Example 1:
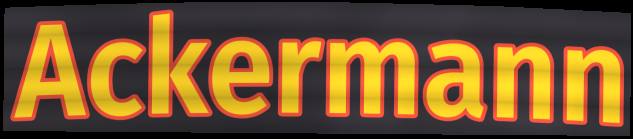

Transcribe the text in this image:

Ackermann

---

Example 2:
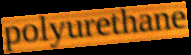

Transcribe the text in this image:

polyurethane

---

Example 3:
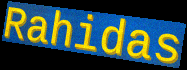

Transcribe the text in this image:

Rahidas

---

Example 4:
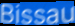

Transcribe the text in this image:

Bissau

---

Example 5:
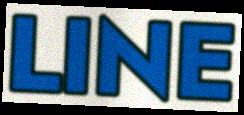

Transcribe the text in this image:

LINE